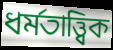
ধর্মতাত্ত্বিক